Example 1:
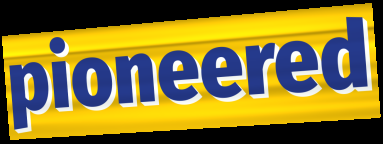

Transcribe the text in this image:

pioneered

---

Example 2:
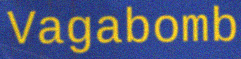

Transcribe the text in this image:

Vagabomb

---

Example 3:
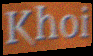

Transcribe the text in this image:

Khoi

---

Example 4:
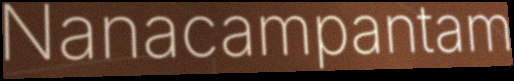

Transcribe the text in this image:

Nanacampantam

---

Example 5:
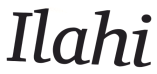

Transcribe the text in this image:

Ilahi